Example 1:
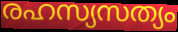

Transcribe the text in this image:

രഹസ്യസത്യം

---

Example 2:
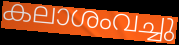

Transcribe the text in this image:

കലാശംവച്ചു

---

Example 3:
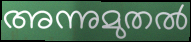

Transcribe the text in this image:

അന്നുമുതൽ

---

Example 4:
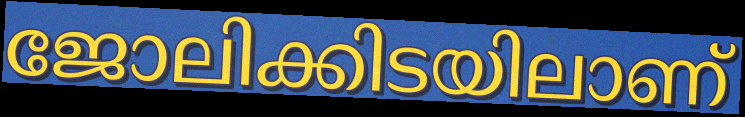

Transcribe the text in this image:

ജോലിക്കിടയിലാണ്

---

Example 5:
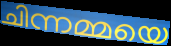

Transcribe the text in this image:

ചിന്നമ്മയെ